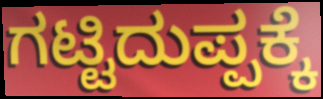
ಗಟ್ಟಿದುಪ್ಪಕ್ಕೆ